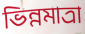
ভিন্নমাত্রা